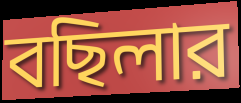
বছিলার